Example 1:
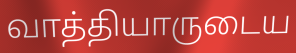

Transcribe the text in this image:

வாத்தியாருடைய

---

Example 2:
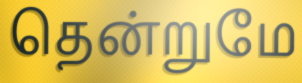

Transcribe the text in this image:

தென்றுமே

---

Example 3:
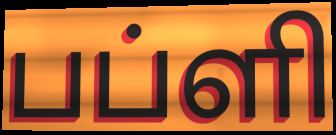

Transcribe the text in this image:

பப்ளி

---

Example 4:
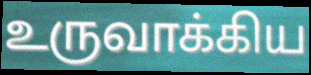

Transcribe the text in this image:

உருவாக்கிய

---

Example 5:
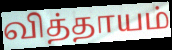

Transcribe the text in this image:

வித்தாயம்